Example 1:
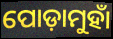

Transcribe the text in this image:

ପୋଡ଼ାମୁହାଁ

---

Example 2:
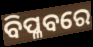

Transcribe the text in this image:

ବିପ୍ଳବରେ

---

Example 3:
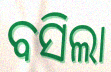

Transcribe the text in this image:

ବସିଲା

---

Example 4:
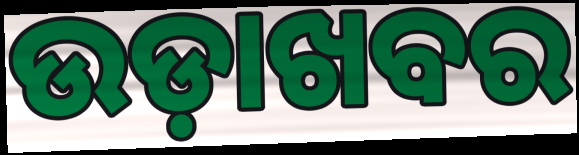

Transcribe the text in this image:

ଉଡ଼ାଖବର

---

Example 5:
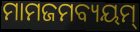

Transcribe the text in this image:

ମାମଜମବ୍ୟୟମ୍